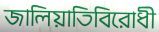
জালিয়াতিবিরোধী